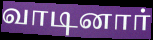
வாடினார்